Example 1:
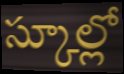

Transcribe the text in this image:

స్కూల్లో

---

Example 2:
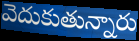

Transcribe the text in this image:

వెదుకుతున్నారు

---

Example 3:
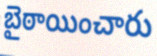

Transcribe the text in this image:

బైఠాయించారు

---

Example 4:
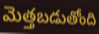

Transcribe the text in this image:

మెత్తబడుతోంది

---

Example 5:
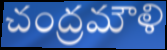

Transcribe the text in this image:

చంద్రమౌళి